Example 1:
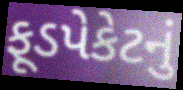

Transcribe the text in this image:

ફૂડપેકેટનું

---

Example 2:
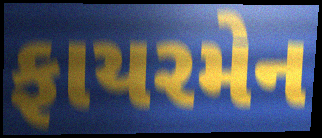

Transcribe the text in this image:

ફાયરમેન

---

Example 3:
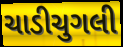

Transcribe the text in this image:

ચાડીચુગલી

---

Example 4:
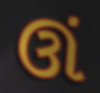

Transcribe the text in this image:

ઊં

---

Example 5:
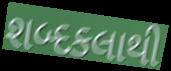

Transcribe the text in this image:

શબ્દકલાથી